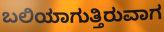
ಬಲಿಯಾಗುತ್ತಿರುವಾಗ